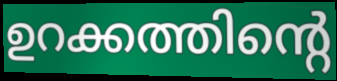
ഉറക്കത്തിന്റെ